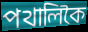
পথালিকৈ